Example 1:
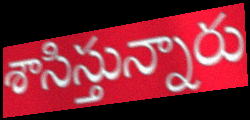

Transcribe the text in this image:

శాసిస్తున్నారు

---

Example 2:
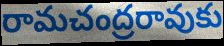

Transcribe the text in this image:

రామచంద్రరావుకు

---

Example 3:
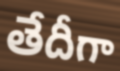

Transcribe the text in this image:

తేదీగా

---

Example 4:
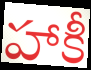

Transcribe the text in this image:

హాకీ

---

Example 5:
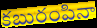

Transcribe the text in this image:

కబురంపినా